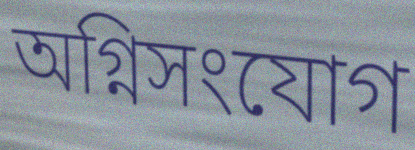
অগ্নিসংযোগ